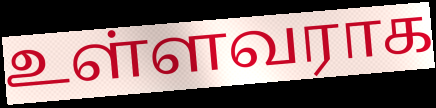
உள்ளவராக